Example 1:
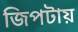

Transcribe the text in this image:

জিপটায়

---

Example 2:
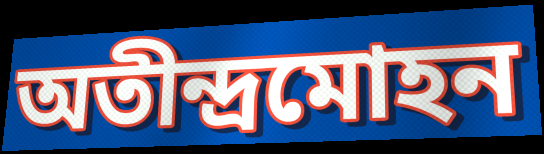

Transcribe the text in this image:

অতীন্দ্রমোহন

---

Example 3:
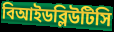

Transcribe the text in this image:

বিআইডব্লিউটিসি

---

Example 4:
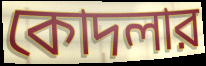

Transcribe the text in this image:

কোদলার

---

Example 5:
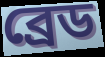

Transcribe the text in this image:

ব্রেড